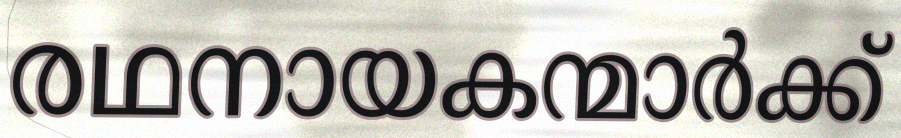
രഥനായകന്മാർക്ക്